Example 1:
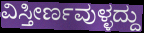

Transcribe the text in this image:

ವಿಸ್ತೀರ್ಣವುಳ್ಳದ್ದು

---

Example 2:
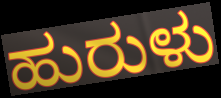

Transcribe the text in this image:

ಹುರುಳು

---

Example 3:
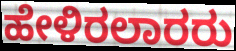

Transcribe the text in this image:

ಹೇಳಿರಲಾರರು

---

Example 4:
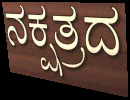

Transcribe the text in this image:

ನಕ್ಷತ್ರದ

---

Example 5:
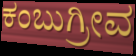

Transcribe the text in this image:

ಕಂಬುಗ್ರೀವ